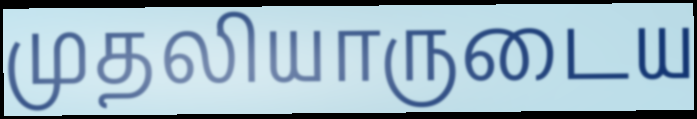
முதலியாருடைய